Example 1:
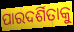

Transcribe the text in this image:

ପାରଦର୍ଶିତାକୁ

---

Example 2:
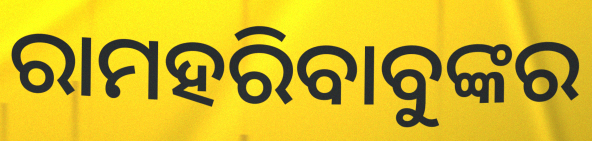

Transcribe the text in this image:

ରାମହରିବାବୁଙ୍କର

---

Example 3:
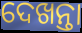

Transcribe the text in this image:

ଦେଖନ୍ତା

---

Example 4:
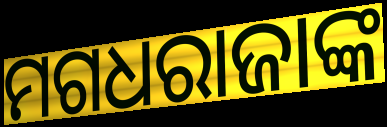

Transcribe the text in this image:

ମଗଧରାଜାଙ୍କ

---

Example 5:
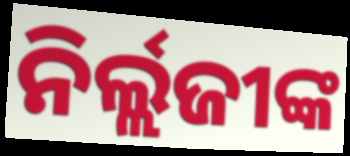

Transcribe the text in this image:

ନିର୍ଲ୍ଲଜୀଙ୍କ